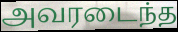
அவரடைந்த